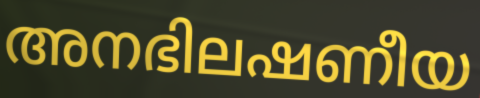
അനഭിലഷണീയ